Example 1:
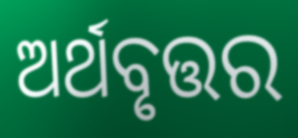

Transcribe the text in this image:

ଅର୍ଥବୃତ୍ତର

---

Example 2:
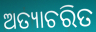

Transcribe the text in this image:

ଅତ୍ୟାଚରିତ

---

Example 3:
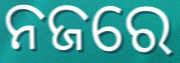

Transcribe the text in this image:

ନଜରେ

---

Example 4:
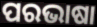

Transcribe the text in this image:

ପରଭାଷା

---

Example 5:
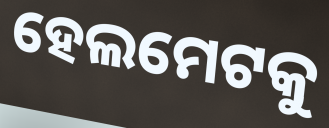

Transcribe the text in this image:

ହେଲମେଟକୁ